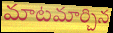
మాటమార్చిన